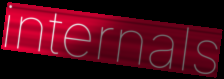
internals